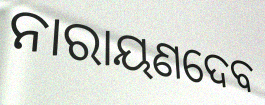
ନାରାୟଣଦେବ